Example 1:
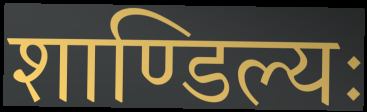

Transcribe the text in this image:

शाण्डिल्यः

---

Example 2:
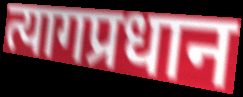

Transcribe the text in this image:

त्यागप्रधान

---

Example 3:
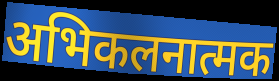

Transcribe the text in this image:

अभिकलनात्मक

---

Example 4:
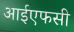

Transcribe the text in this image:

आईएफसी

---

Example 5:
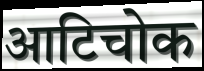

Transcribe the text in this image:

आटिचोक